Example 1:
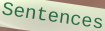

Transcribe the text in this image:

Sentences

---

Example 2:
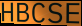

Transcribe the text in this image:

HBCSE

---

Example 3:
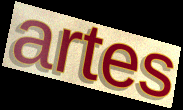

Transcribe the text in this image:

artes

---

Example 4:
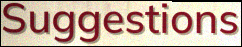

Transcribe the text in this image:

Suggestions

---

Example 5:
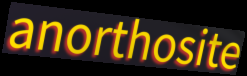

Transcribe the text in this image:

anorthosite